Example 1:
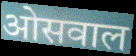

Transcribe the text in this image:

ओसवाल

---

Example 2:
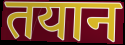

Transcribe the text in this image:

तयान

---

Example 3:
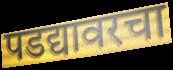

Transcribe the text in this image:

पडद्यावरचा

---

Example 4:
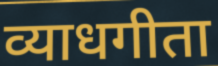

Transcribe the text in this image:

व्याधगीता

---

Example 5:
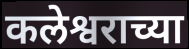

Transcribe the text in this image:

कलेश्वराच्या